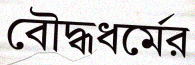
বৌদ্ধধর্মের